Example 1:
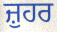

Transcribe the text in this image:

ਜ਼ੁਹਰ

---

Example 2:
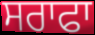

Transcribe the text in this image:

ਸਰਾਫਾ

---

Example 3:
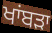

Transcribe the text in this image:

ਖਾਂਬੜਾ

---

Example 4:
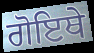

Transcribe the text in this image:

ਗੋਇਥੇ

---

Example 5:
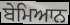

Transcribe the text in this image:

ਬੇਮਿਆਨ